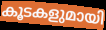
കൂടകളുമായി